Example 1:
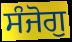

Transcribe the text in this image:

ਸੰਜੋਗੁ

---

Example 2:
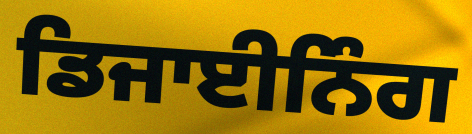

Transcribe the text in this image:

ਡਿਜਾਈਨਿੰਗ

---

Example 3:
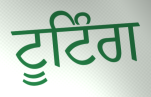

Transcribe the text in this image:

ਟੂਟਿੰਗ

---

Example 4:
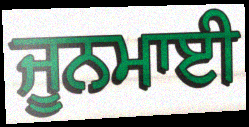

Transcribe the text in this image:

ਜੂਨਮਾਈ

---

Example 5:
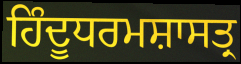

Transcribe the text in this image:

ਹਿੰਦੂਧਰਮਸ਼ਾਸਤ੍ਰ